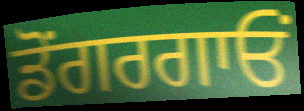
ਡੋਂਗਰਗਾਓਂ